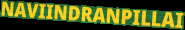
NAVIINDRANPILLAI